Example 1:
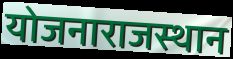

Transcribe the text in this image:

योजनाराजस्थान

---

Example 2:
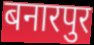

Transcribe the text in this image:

बनारपुर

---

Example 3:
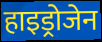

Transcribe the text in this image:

हाइड्रोजेन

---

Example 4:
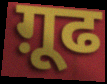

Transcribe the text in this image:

ग़ूढ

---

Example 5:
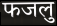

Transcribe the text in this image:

फजलु